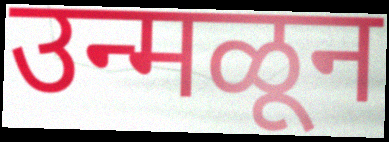
उन्मळून